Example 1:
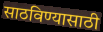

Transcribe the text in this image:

साठविण्यासाठी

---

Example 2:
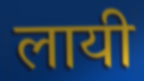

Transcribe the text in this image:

लायी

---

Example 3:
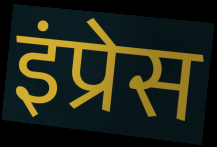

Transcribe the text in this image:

इंप्रेस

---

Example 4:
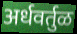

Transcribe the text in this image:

अर्धवर्तुळ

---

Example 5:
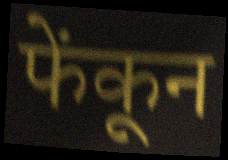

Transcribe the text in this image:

फेंकून